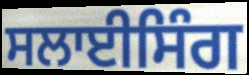
ਸਲਾਈਸਿੰਗ